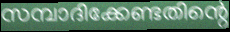
സമ്പാദിക്കേണ്ടതിന്റെ